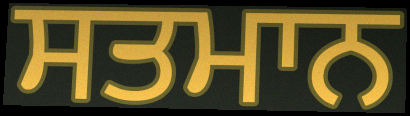
ਸਤਮਾਨ